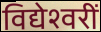
विद्येश्वरीं